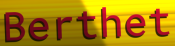
Berthet